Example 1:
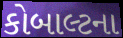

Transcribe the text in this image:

કોબાલ્ટના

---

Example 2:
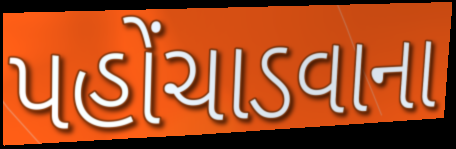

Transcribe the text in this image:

પહોંચાડવાના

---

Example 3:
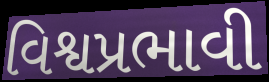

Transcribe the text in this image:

વિશ્વપ્રભાવી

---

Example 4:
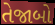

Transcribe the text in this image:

તેજાબો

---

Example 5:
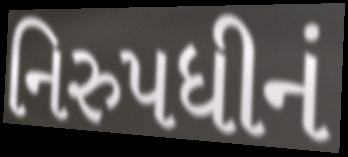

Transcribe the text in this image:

નિરુપધીનં